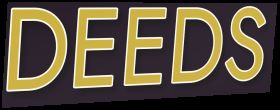
DEEDS